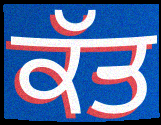
ਕੱਤ